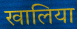
खालिया